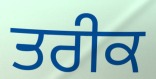
ਤਰੀਕ